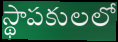
స్థాపకులలో